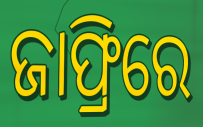
ଜାଫ୍ରିରେ